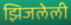
झिजलेली